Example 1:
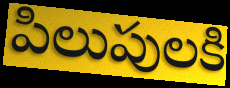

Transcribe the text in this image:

పిలుపులకి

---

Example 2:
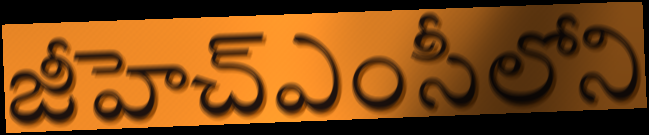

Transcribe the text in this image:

జీహెచ్ఎంసీలోని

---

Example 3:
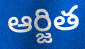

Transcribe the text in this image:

ఆర్జిత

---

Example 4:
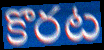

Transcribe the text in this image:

కొరట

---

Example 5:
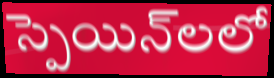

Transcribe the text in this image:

స్పెయిన్‌లలో